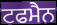
ਟਫਮੈਨ